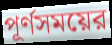
পূর্ণসময়ের